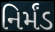
નિર્મંડ